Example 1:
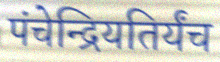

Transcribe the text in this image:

पंचेन्द्रियतिर्यंच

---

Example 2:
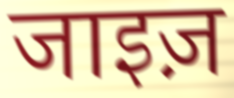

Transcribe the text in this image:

जाइज़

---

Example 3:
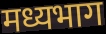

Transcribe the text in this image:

मध्यभाग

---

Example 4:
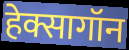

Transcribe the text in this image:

हेक्सागॉन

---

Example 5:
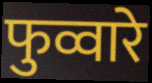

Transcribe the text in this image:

फुव्वारे